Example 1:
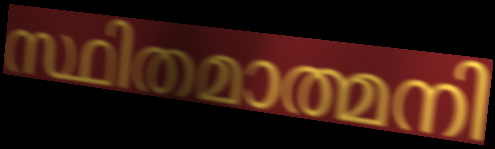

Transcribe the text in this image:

സ്ഥിതമാത്മനി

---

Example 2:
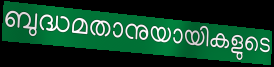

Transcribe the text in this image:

ബുദ്ധമതാനുയായികളുടെ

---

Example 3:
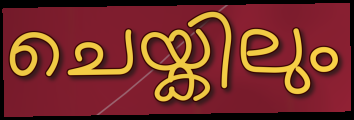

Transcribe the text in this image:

ചെയ്കിലും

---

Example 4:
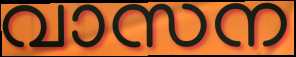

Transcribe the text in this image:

വാസന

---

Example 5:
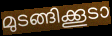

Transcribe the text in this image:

മുടങ്ങിക്കൂടാ